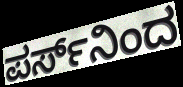
ಪರ್ಸ್‌ನಿಂದ